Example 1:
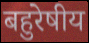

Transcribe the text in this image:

बहुरेषीय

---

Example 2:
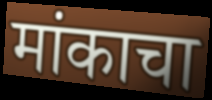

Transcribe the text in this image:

मांकाचा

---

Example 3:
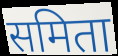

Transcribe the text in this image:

समिता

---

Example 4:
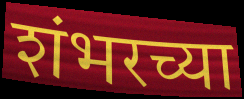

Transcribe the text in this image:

शंभरच्या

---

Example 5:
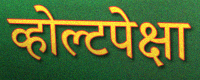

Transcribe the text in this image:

व्होल्टपेक्षा